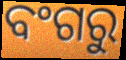
ବଂଗରୁ